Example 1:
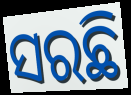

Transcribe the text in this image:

ସରଛି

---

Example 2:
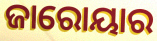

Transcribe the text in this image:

ଜାରୋୟାର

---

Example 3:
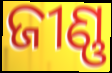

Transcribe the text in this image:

ଜୀଣ୍ଣ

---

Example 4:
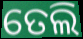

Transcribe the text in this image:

ତେଲି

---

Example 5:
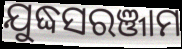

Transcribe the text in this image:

ଯୁଦ୍ଧସରଞ୍ଜାମ